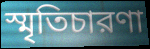
স্মৃতিচারণা